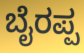
ಬೈರಪ್ಪ